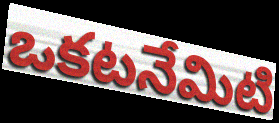
ఒకటనేమిటి